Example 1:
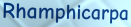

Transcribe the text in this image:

Rhamphicarpa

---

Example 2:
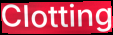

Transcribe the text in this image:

Clotting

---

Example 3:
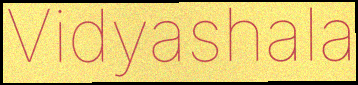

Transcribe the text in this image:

Vidyashala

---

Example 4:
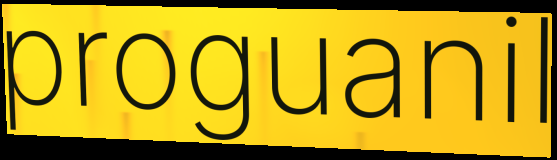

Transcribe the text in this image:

proguanil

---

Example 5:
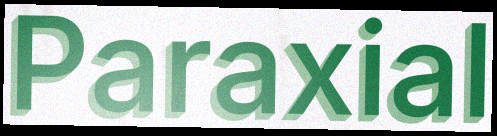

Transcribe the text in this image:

Paraxial